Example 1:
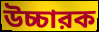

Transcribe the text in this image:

উচ্চারক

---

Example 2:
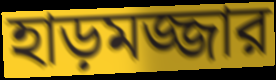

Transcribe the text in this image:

হাড়মজ্জার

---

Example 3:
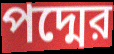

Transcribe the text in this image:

পদ্মের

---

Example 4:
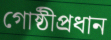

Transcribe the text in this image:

গোষ্ঠীপ্রধান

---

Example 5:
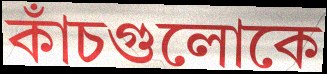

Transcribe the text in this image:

কাঁচগুলোকে